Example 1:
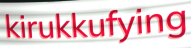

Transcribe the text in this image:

kirukkufying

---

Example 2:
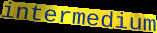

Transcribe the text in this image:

intermedium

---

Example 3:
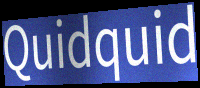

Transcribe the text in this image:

Quidquid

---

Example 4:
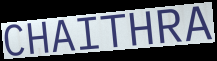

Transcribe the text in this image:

CHAITHRA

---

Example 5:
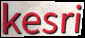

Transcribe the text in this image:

kesri